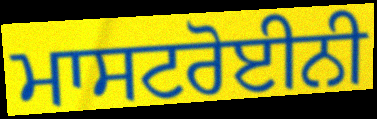
ਮਾਸਟਰੋਈਨੀ